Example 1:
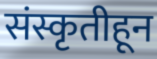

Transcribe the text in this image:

संस्कृतीहून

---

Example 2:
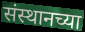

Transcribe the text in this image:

संस्थानच्या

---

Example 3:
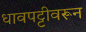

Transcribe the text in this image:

धावपट्टीवरून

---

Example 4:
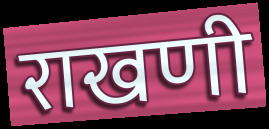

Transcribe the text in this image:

राखणी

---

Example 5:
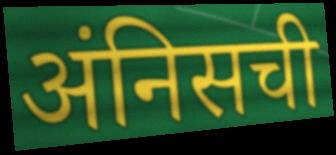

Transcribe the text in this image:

अंनिसची